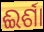
ଈର୍ଶା